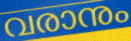
വരാനും